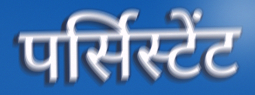
पर्सिस्टेंट